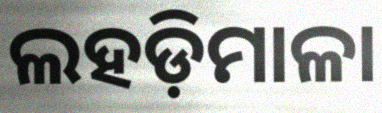
ଲହଡ଼ିମାଳା